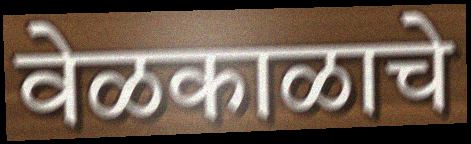
वेळकाळाचे